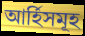
আৰ্হিসমূহ